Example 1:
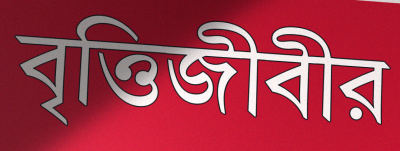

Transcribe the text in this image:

বৃত্তিজীবীর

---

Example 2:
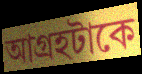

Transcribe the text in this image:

আগ্রহটাকে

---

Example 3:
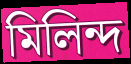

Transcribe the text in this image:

মিলিন্দ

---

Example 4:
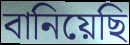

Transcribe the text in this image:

বানিয়েছি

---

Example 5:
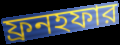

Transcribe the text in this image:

ফ্রনহফার